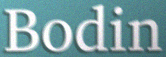
Bodin